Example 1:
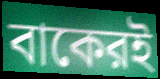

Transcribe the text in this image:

বাকেরই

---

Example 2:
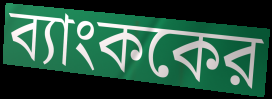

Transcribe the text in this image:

ব্যাংককের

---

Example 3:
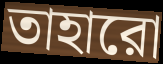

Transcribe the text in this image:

তাহারো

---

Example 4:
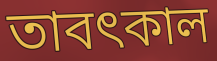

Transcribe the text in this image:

তাবৎকাল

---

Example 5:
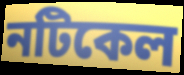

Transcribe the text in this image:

নটিকেল